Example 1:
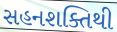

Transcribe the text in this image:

સહનશક્તિથી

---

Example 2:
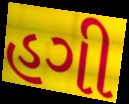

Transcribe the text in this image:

હગી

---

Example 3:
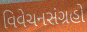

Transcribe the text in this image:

વિવેચનસંગ્રહો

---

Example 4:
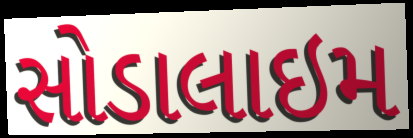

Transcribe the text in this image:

સોડાલાઇમ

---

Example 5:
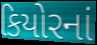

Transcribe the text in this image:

કિયોરનાં